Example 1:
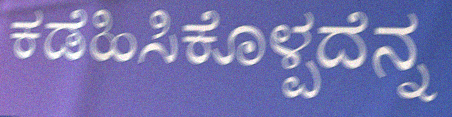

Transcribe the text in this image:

ಕಡೆಹಿಸಿಕೊಳ್ಪದೆನ್ನ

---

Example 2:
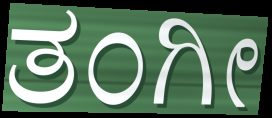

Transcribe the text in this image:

ತಂಗೀ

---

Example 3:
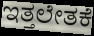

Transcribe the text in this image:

ಇತ್ತಲೇತಕೆ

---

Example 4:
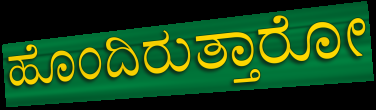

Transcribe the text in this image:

ಹೊಂದಿರುತ್ತಾರೋ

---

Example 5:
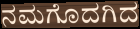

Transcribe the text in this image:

ನಮಗೊದಗಿದ